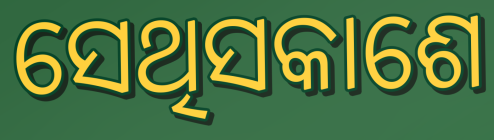
ସେଥିସକାଶେ